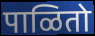
पाळितो